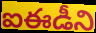
ఐఈడీని